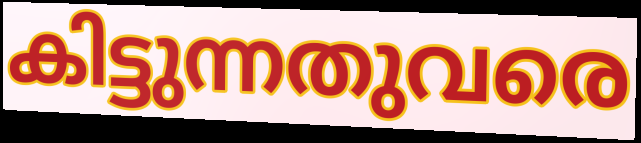
കിട്ടുന്നതുവരെ